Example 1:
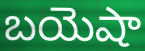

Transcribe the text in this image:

బయెషా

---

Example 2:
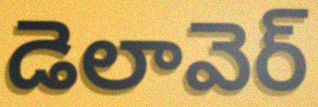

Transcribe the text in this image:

డెలావెర్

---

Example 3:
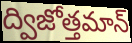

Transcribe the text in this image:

ద్విజోత్తమాన్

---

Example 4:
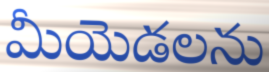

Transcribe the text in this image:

మీయెడలను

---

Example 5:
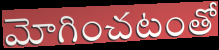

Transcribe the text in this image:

మోగించటంతో